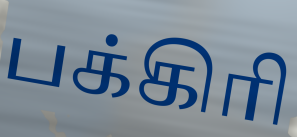
பக்கிரி